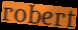
robert